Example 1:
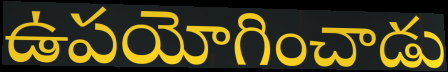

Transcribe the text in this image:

ఉపయోగించాడు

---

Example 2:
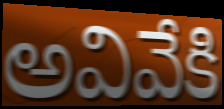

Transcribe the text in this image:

అవివేకి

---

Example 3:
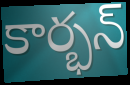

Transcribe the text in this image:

కార్భన్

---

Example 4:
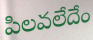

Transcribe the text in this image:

పిలవలేదేం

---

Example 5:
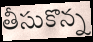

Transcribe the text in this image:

తీసుకొన్న